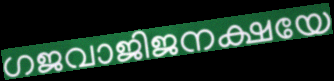
ഗജവാജിജനക്ഷയേ